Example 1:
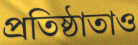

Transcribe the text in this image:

প্রতিষ্ঠাতাও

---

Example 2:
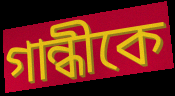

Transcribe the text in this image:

গান্ধীকে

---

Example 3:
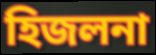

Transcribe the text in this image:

হিজলনা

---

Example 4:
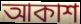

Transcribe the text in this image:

আকাশ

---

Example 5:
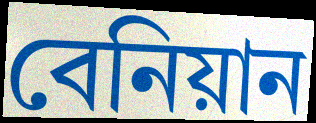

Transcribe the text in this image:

বেনিয়ান